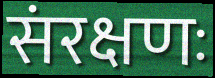
संरक्षणः